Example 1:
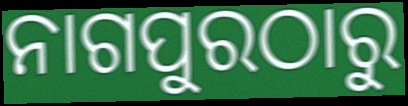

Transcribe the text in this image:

ନାଗପୁରଠାରୁ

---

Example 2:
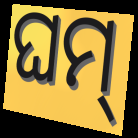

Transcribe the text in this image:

ଘମ୍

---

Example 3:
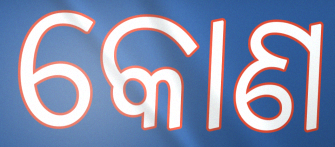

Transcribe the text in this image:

କୋଣ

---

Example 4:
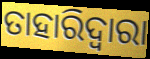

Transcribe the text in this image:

ତାହାରିଦ୍ଵାରା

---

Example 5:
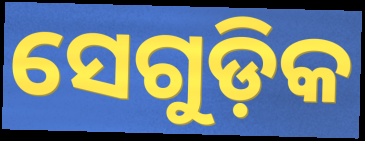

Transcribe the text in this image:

ସେଗୁଡ଼ିକ